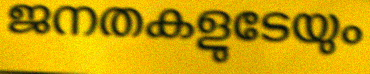
ജനതകളുടേയും